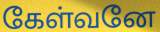
கேள்வனே